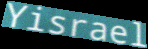
Yisrael